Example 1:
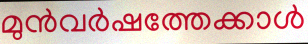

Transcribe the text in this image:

മുൻവർഷത്തേക്കാൾ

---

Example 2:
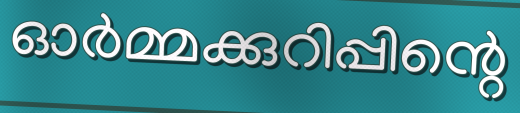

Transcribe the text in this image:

ഓർമ്മക്കുറിപ്പിന്റെ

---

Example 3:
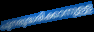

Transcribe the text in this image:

പുനരുദ്ധരിക്കാനുള്ള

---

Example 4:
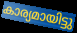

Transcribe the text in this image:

കാര്യമായിട്ടു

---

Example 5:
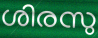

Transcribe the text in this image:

ശിരസു